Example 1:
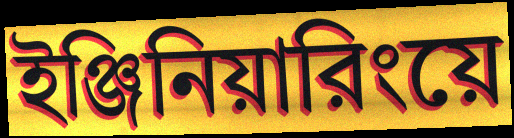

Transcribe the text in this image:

ইঞ্জিনিয়ারিংয়ে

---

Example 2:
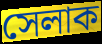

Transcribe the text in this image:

সেলাক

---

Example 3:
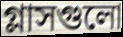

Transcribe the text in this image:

গ্লাসগুলো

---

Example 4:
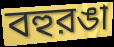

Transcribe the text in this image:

বহুরঙা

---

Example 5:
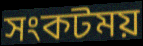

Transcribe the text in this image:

সংকটময়